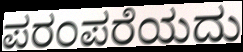
ಪರಂಪರೆಯದು